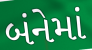
બંનેમાં